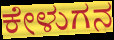
ಕೇಳುಗನ